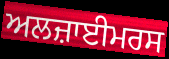
ਅਲਜ਼ਾਈਮਰਸ